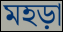
মহড়া